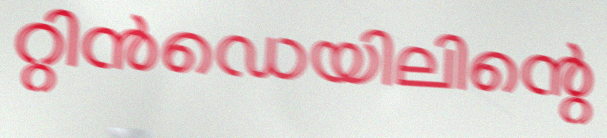
റ്റിൻഡെയിലിന്റെ